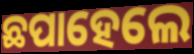
ଛପାହେଲେ